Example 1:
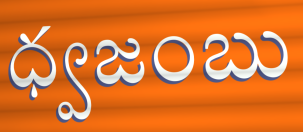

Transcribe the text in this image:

ధ్వజంబు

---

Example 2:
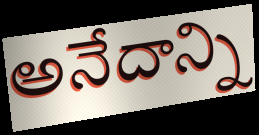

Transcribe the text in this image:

అనేదాన్ని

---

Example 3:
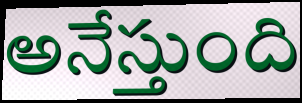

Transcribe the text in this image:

అనేస్తుంది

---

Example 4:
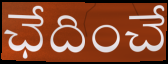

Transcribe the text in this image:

ఛేదించే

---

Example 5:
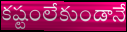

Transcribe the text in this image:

కష్టంలేకుండానే